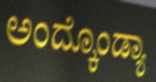
ಅಂದ್ಕೊಂಡ್ಯಾ